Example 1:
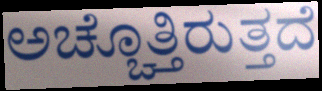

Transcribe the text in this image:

ಅಚ್ಚೊತ್ತಿರುತ್ತದೆ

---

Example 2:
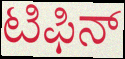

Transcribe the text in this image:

ಟಿಫಿನ್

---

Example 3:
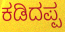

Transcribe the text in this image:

ಕಡಿದಪ್ಪ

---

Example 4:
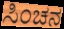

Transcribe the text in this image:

ಸಿಂಚನ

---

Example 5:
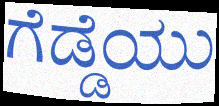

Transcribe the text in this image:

ಗೆಡ್ಡೆಯು